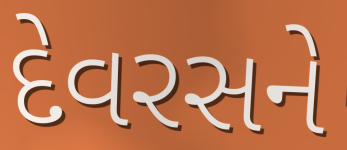
દેવરસને